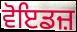
ਵੋਇਡਜ਼